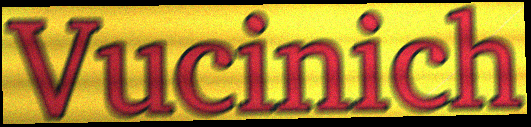
Vucinich